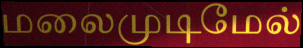
மலைமுடிமேல்